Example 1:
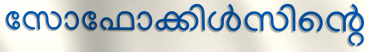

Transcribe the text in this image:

സോഫോക്കിൾസിന്റെ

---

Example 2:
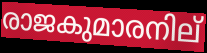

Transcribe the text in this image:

രാജകുമാരനില്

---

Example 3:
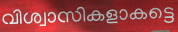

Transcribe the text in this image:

വിശ്വാസികളാകട്ടെ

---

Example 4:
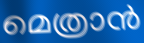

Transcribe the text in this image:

മെത്രാൻ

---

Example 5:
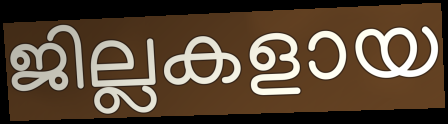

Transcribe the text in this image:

ജില്ലകളായ